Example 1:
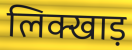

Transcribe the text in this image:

लिक्खाड़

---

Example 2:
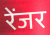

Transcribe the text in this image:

रेंजर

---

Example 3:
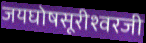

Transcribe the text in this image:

जयघोषसूरीश्वरजी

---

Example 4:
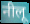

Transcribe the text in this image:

नीलू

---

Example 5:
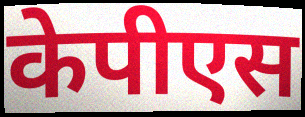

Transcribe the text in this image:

केपीएस